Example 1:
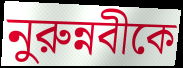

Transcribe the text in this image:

নুরুন্নবীকে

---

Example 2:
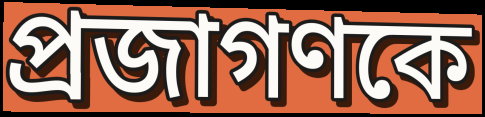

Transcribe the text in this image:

প্রজাগণকে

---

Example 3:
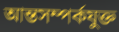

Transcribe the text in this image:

আন্তসম্পর্কযুক্ত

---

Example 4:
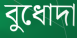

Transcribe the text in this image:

বুধোদা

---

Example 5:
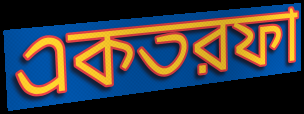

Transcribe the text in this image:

একতরফা